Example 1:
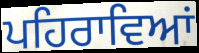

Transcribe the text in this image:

ਪਹਿਰਾਵਿਆਂ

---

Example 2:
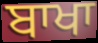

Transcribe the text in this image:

ਬਾਖਾ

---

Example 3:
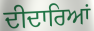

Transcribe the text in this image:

ਦੀਦਾਰਿਆਂ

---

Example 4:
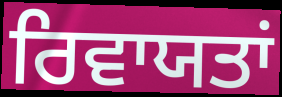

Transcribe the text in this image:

ਰਿਵਾਯਤਾਂ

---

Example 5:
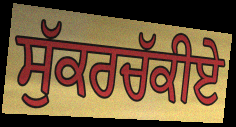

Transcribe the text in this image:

ਸੁੱਕਰਚੱਕੀਏ